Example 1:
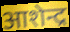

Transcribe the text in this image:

आशेन्द्र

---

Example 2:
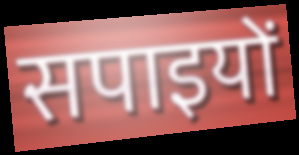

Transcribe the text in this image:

सपाइयों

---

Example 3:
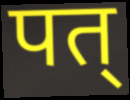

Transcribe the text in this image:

पत्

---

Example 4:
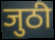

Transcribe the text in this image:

जुठी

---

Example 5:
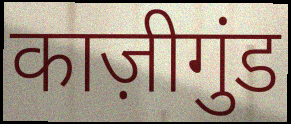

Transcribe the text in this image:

काज़ीगुंड